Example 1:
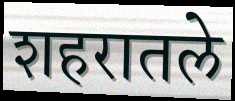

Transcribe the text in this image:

शहरातले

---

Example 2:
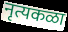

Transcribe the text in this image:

नृत्यकळा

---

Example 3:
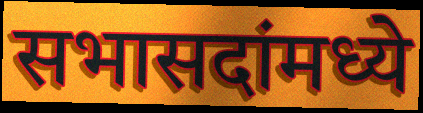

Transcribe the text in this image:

सभासदांमध्ये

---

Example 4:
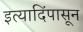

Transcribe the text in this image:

इत्यादिंपासून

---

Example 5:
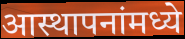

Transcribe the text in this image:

आस्थापनांमध्ये